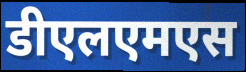
डीएलएमएस